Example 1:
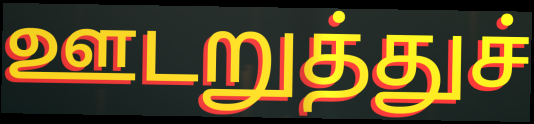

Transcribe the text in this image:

ஊடறுத்துச்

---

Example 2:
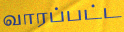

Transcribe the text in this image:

வாரப்பட்ட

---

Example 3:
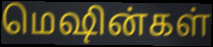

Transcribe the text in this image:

மெஷின்கள்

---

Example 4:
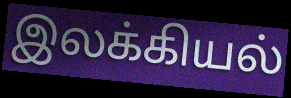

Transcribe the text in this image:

இலக்கியல்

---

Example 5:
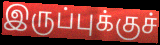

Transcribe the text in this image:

இருப்புக்குச்